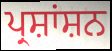
ਪ੍ਰਸ਼ਾਂਸ਼ਨ